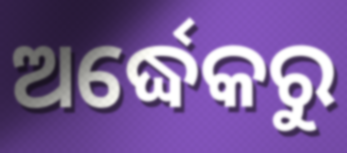
ଅର୍ଦ୍ଧେକରୁ